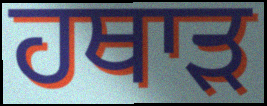
ਹਥਾੜ